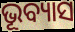
ଭୂବ୍ୟାସ